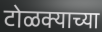
टोळक्याच्या